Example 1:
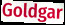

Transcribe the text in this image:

Goldgar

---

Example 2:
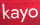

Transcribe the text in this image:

kayo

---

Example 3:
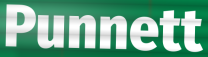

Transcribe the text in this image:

Punnett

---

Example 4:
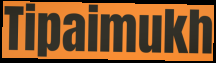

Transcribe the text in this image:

Tipaimukh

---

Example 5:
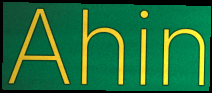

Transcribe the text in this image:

Ahin